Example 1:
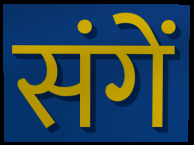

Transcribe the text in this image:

संगें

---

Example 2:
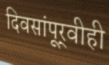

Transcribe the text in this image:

दिवसांपूर्वीही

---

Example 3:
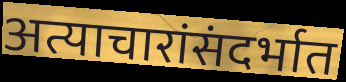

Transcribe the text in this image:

अत्याचारांसंदर्भात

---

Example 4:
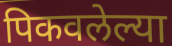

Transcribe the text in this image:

पिकवलेल्या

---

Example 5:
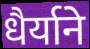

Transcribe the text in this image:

धैर्याने